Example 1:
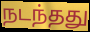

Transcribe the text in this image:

நடந்தது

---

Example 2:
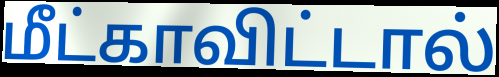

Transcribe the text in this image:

மீட்காவிட்டால்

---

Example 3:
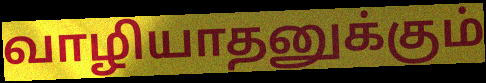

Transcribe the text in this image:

வாழியாதனுக்கும்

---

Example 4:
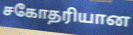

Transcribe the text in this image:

சகோதரியான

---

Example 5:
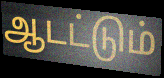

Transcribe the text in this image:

ஆடட்டும்